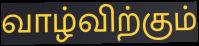
வாழ்விற்கும்